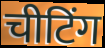
चीटिंग